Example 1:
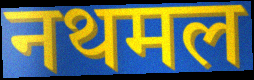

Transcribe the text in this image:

नथमल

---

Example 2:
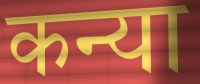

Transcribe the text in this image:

कन्या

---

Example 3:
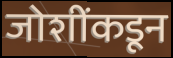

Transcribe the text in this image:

जोशींकडून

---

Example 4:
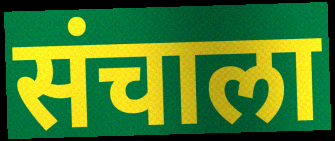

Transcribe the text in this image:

संचाला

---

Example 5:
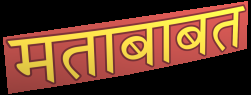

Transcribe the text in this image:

मताबाबत